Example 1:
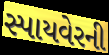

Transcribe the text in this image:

સ્પાયવેરની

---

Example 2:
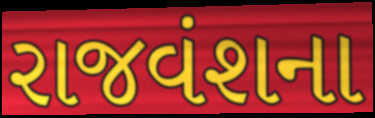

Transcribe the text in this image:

રાજવંશના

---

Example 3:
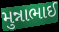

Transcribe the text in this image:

મુન્નાભાઈ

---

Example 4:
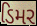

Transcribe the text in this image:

ડિમર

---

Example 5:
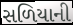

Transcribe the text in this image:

સળિયાની